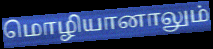
மொழியானாலும்